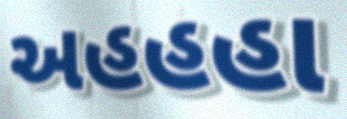
અહહહા